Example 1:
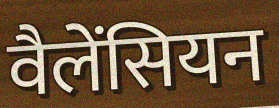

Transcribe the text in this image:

वैलेंसियन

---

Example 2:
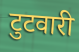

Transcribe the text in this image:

टुटवारी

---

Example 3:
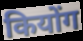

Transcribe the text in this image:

कियोंग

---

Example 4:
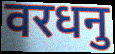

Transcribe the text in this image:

वरधनु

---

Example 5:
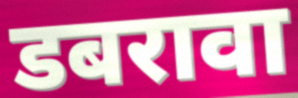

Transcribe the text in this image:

डबरावा